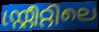
സ്റ്റ്രീറ്റിലെ